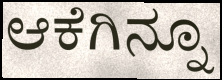
ಆಕೆಗಿನ್ನೂ